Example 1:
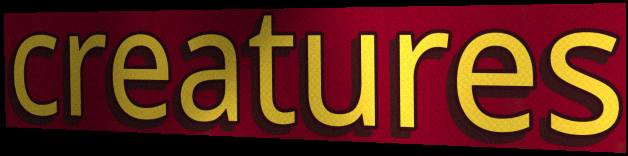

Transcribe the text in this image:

creatures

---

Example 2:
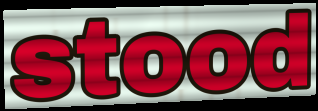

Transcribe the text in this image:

stood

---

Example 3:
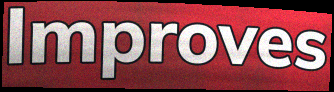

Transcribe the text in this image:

Improves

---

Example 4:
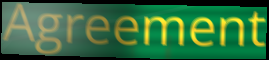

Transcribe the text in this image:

Agreement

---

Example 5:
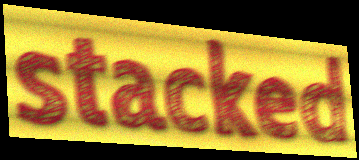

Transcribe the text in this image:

stacked